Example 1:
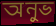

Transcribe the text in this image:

অনুভ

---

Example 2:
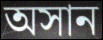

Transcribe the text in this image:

অসান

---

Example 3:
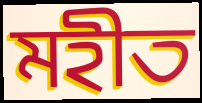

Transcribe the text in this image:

মহীত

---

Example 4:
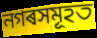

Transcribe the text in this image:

নগৰসমূহত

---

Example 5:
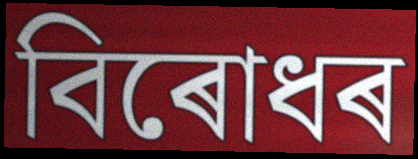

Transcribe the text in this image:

বিৰোধৰ